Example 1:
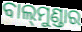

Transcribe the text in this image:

ବାଲ୍‍ମୁଣ୍ଡାର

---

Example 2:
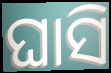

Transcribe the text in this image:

ଘାସି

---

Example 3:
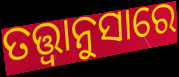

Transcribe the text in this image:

ତତ୍ତ୍ୱାନୁସାରେ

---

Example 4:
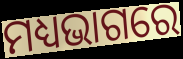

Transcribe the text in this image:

ମଧ୍ୟଭାଗରେ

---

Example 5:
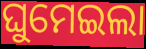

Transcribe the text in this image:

ଘୁମେଇଲା